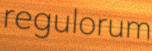
regulorum